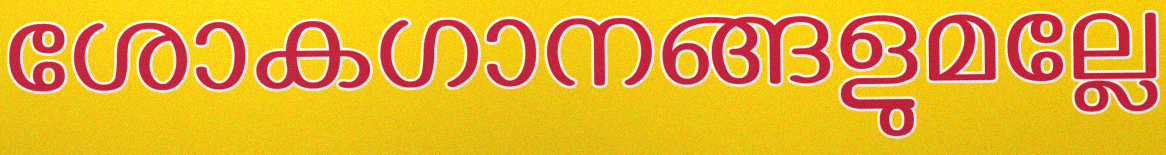
ശോകഗാനങ്ങളുമല്ലേ